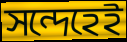
সন্দেহেই